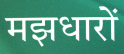
मझधारों